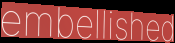
embellished